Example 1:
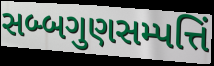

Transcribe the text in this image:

સબ્બગુણસમ્પત્તિં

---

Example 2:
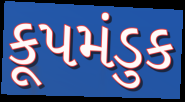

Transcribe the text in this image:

કૂપમંડુક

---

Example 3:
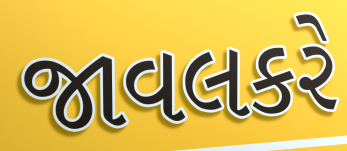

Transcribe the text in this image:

જાવલકરે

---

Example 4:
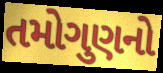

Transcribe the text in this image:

તમોગુણનો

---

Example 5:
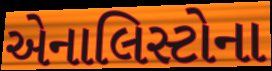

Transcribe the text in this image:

એનાલિસ્ટોના